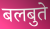
बलबुते